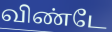
விண்டே